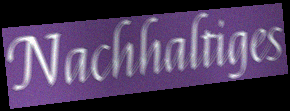
Nachhaltiges